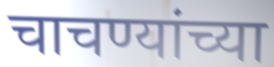
चाचण्यांच्या